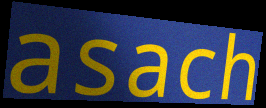
asach